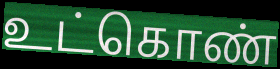
உட்கொண்